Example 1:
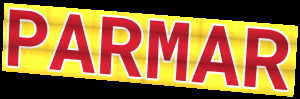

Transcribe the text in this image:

PARMAR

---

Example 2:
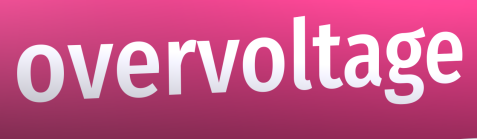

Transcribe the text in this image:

overvoltage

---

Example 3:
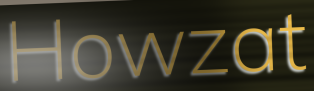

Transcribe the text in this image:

Howzat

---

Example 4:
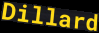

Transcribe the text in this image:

Dillard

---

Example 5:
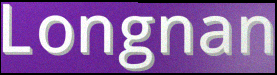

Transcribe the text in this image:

Longnan